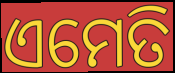
ଏମେତି